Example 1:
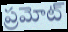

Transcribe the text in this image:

ప్రమోట్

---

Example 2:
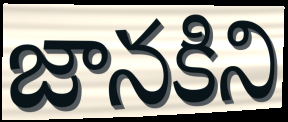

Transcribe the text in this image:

జానకిని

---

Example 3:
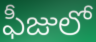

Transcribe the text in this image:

ఫీజులో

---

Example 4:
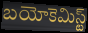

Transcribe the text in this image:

బయోకెమిస్ట్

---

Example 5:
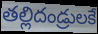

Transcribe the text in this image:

తల్లిదండ్రులకే